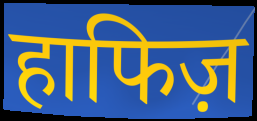
हाफिज़